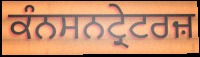
ਕੰਨਸਨਟ੍ਰੇਟਰਜ਼